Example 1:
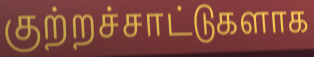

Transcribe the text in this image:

குற்றச்சாட்டுகளாக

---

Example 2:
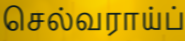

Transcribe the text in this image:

செல்வராய்ப்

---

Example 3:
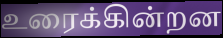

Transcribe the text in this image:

உரைக்கின்றன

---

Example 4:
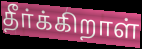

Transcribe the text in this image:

தீர்க்கிறாள்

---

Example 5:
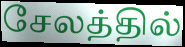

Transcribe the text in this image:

சேலத்தில்